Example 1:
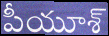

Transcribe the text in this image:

పీయూశ్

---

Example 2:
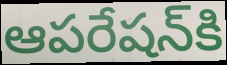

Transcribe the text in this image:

ఆపరేషన్‌కి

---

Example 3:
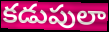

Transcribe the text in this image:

కడుపులా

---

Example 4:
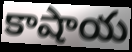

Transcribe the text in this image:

కాషాయ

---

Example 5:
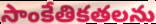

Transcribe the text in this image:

సాంకేతికతలను